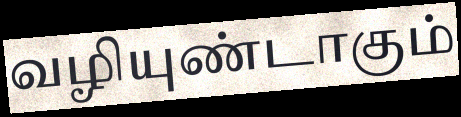
வழியுண்டாகும்